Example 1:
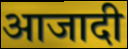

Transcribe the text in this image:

आजादी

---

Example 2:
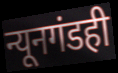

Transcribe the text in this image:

न्यूनगंडही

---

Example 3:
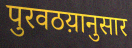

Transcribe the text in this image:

पुरवठय़ानुसार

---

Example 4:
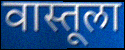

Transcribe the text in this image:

वास्तूला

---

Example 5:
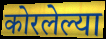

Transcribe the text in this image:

कोरलेल्या